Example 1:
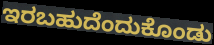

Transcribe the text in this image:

ಇರಬಹುದೆಂದುಕೊಂಡು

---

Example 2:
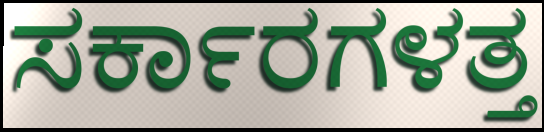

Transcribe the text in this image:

ಸರ್ಕಾರಗಳತ್ತ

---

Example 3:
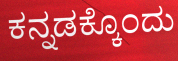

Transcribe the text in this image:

ಕನ್ನಡಕ್ಕೊಂದು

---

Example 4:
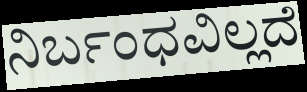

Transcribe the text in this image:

ನಿರ್ಬಂಧವಿಲ್ಲದೆ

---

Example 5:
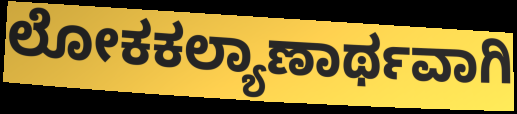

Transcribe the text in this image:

ಲೋಕಕಲ್ಯಾಣಾರ್ಥವಾಗಿ